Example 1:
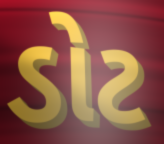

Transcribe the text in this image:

ડોટ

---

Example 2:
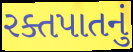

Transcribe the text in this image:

રક્તપાતનું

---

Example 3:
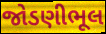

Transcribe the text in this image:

જોડણીભૂલ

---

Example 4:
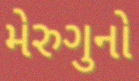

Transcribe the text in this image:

મેરુગુનો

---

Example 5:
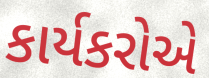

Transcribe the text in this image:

કાર્યકરોએ